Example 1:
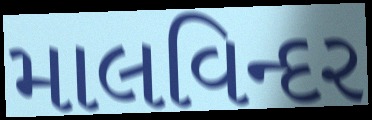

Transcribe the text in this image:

માલવિન્દર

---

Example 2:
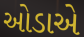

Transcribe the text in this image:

ઓડાએ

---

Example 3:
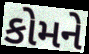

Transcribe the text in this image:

કોમને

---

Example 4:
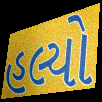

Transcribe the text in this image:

હલ્યો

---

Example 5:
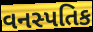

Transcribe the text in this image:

વનસ્પતિક